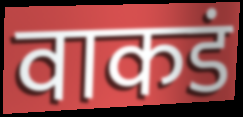
वाकडं